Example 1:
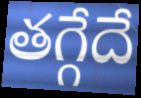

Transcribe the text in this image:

తగ్గేదే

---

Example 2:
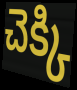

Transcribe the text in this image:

చెక్కి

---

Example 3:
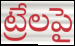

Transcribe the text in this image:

ట్రేలపై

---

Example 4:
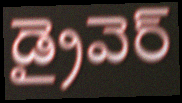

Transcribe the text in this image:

డ్రైవెర్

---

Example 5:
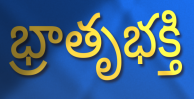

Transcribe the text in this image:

భ్రాతృభక్తి